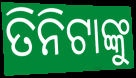
ତିନିଟାଙ୍କୁ